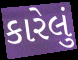
કારેલું